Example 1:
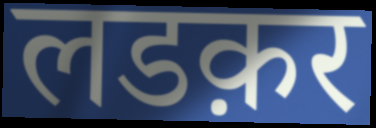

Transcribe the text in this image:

लडक़र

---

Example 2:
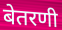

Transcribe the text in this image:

बेतरणी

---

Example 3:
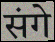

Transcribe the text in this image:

संगे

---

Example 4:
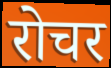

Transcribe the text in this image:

रोचर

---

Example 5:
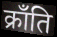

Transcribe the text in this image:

क्राँति